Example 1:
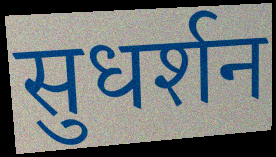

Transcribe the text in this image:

सुधर्शन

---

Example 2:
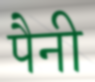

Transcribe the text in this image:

पैनी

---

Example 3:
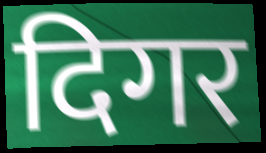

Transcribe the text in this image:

दिगर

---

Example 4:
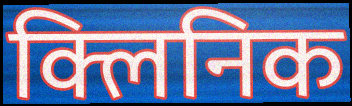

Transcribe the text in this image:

क्लिनिक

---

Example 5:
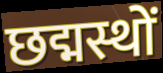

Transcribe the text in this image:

छद्मस्थों